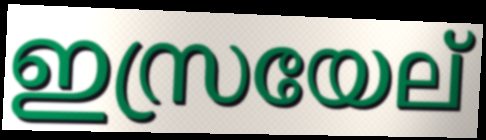
ഇസ്രയേല്